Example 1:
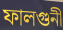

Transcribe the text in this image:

ফালগুনী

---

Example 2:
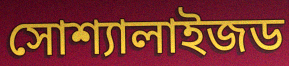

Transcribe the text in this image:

সোশ্যালাইজড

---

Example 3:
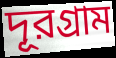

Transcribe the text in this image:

দূরগ্রাম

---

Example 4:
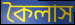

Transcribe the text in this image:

কৈলাস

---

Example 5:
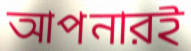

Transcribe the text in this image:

আপনারই